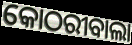
କୋଠରୀବାଲା